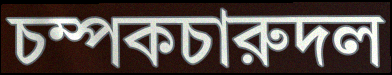
চম্পকচারুদল